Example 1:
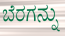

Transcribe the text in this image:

ಬೆರಗನ್ನು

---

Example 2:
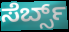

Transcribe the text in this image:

ಸೆರ್ಬ್ಸ್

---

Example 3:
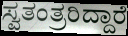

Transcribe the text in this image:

ಸ್ವತಂತ್ರರಿದ್ದಾರೆ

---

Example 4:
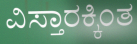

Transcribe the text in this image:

ವಿಸ್ತಾರಕ್ಕಿಂತ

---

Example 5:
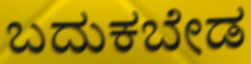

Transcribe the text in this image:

ಬದುಕಬೇಡ